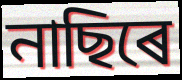
নাছিৰে